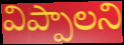
విప్పాలని